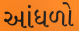
આંધળો